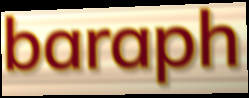
baraph